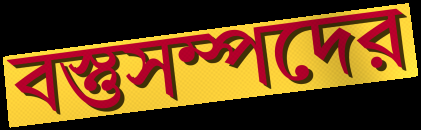
বস্তুসম্পদের